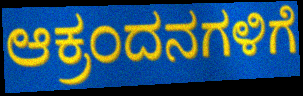
ಆಕ್ರಂದನಗಳಿಗೆ